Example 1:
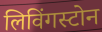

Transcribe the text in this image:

लिविंगस्टोन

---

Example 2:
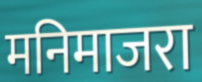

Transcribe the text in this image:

मनिमाजरा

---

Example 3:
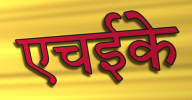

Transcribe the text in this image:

एचईके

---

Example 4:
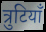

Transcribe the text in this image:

त्रुटियाँ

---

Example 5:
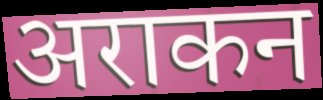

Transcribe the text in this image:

अराकन